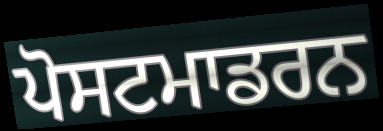
ਪੋਸਟਮਾਡਰਨ